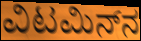
ವಿಟಮಿನ್‌ನ